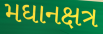
મઘાનક્ષત્ર